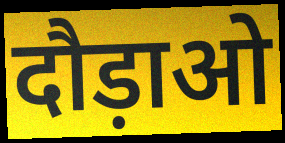
दौड़ाओ